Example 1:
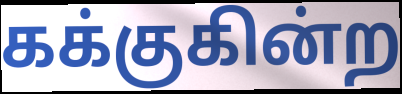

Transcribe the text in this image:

கக்குகின்ற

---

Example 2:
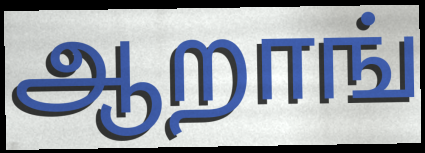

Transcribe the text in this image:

ஆறாங்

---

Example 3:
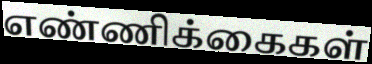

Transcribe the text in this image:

எண்ணிக்கைகள்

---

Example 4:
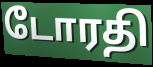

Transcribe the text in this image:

டோரதி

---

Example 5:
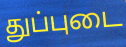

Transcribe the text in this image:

துப்புடை